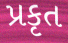
પ્રકૃત